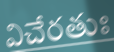
విచేరతుః